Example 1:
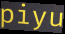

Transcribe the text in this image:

piyu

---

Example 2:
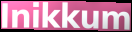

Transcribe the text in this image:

Inikkum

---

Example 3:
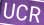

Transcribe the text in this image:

UCR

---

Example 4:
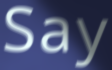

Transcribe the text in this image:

Say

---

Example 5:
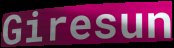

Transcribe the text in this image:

Giresun